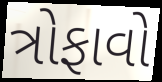
ત્રોફાવો